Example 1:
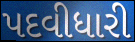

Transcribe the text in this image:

પદવીધારી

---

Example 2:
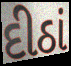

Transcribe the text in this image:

દીઠાં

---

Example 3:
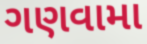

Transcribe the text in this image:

ગણવામા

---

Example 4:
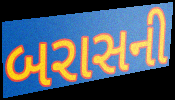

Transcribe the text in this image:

બરાસની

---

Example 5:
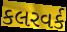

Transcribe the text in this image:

કલરવર્ક